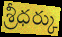
శ్రీధర్కు